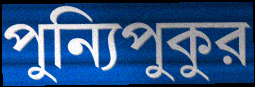
পুন্যিপুকুর